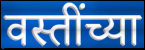
वस्तींच्या